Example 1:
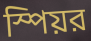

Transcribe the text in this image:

স্পিয়র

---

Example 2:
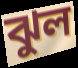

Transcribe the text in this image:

ঝুল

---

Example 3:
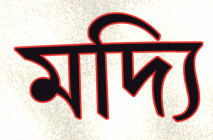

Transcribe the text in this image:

মদ্যি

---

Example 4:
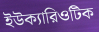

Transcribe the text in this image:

ইউক্যারিওটিক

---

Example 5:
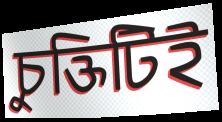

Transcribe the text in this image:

চুক্তিটিই